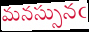
మనస్సునఁ